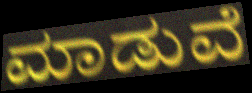
ಮಾಡುವೆ